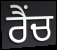
ਰੈਂਚ